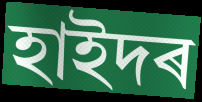
হাইদৰ